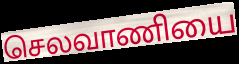
செலவாணியை